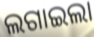
ଲଗାଇଲା